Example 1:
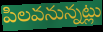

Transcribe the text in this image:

పిలవనున్నట్లు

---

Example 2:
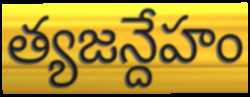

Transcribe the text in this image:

త్యజన్దేహం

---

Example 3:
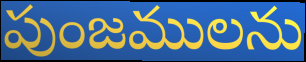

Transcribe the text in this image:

పుంజములను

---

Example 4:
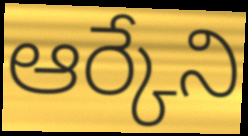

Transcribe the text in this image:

ఆర్కేని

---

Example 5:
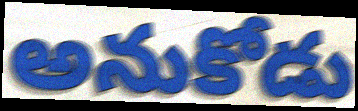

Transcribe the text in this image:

అనుకోడు